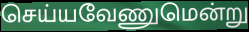
செய்யவேணுமென்று